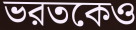
ভরতকেও